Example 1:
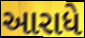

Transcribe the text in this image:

આરાધે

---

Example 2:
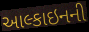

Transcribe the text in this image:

આલ્કાઇનની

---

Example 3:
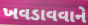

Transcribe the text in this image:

ખવડાવવાને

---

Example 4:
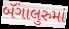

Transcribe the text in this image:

બૅંગાલુરુમાં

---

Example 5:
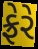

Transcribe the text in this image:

ફ્રેરે